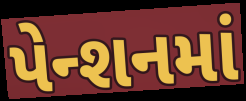
પેન્શનમાં